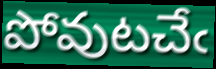
పోవుటచేఁ